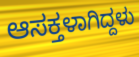
ಆಸಕ್ತಳಾಗಿದ್ದಳು